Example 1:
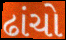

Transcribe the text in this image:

ઢાંચો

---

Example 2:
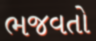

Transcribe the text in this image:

ભજવતો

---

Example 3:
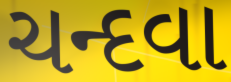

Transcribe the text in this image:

ચન્દવા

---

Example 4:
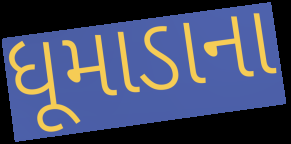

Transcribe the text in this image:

ધૂમાડાના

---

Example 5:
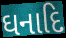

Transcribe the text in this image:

ઘનાદિ